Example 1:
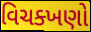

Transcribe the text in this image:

વિચક્ખણો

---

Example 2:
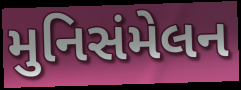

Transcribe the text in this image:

મુનિસંમેલન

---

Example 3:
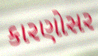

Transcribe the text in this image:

કારણોસર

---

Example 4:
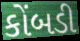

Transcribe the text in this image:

કોંબડી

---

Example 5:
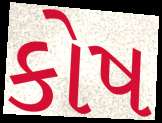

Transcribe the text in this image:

કોષ